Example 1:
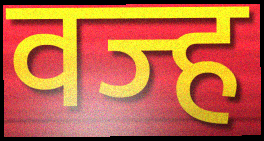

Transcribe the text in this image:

वज्ह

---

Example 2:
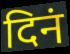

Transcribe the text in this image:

दिनं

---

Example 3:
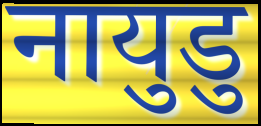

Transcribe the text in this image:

नायुडु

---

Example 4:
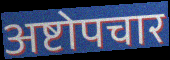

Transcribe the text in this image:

अष्टोपचार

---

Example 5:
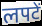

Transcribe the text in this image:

लपटें